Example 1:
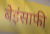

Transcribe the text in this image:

बेइंसाफी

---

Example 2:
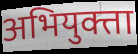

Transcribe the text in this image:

अभियुक्ता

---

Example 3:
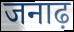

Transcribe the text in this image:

जनाढ़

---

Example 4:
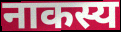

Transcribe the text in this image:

नाकस्य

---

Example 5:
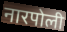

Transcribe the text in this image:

नारपोली